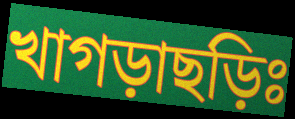
খাগড়াছড়িঃ